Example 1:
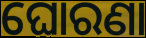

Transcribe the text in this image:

ଘୋରଣା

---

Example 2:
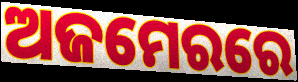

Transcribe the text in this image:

ଅଜମେରରେ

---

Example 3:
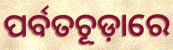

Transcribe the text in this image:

ପର୍ବତଚୂଡ଼ାରେ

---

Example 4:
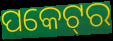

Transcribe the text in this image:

ପକେଟ୍‌ର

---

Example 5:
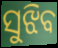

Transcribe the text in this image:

ସୁଝିବ